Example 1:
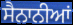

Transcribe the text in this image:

ਸੈਨਾਨੀਆਂ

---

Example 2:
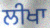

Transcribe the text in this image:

ਲੀਖਾ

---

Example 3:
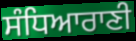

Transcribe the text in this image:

ਸੰਧਿਆਰਾਣੀ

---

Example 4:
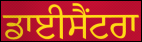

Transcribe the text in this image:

ਡਾਈਸੈਂਟਰਾ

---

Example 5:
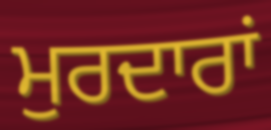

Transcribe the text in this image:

ਮੁਰਦਾਰਾਂ